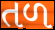
તળ